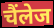
चैंलेज